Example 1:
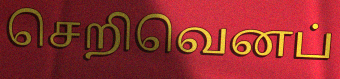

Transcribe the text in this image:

செறிவெனப்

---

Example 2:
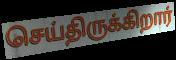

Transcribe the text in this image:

செய்திருக்கிறார்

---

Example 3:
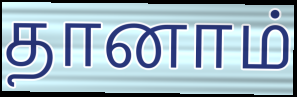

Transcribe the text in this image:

தானாம்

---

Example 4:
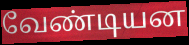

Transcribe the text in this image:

வேண்டியன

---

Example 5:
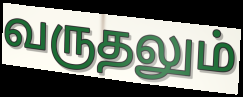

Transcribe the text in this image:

வருதலும்